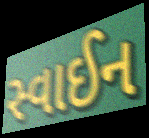
સ્વાઈન